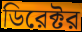
ডিরেক্টর